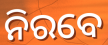
ନିରବେ